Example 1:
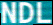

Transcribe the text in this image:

NDL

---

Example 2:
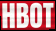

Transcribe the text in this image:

HBOT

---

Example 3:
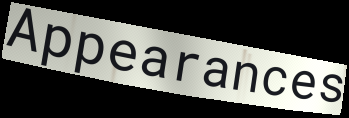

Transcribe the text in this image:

Appearances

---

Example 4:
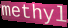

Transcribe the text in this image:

methyl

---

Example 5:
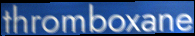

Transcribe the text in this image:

thromboxane